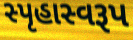
સ્પૃહાસ્વરૂપ